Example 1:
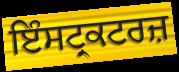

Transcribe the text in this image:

ਇੰਸਟ੍ਰਕਟਰਜ਼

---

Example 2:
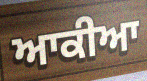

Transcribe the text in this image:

ਆਕੀਆ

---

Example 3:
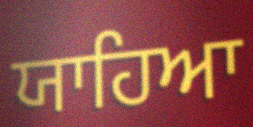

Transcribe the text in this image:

ਯਾਹਿਆ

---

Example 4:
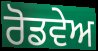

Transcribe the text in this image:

ਰੋਡਵੇਅ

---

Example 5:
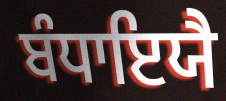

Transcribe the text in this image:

ਬੰਧਾਇਯੈ